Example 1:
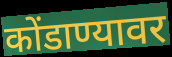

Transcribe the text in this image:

कोंडाण्यावर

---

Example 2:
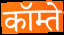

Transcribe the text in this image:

कॉम्ते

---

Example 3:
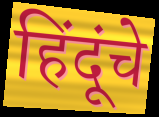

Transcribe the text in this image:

हिंदूंचे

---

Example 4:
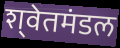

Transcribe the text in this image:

श्वेतमंडल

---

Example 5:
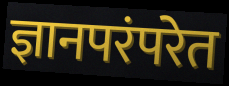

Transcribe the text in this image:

ज्ञानपरंपरेत